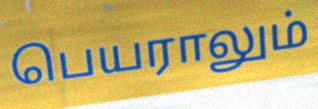
பெயராலும்